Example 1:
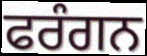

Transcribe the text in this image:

ਫਰੰਗਨ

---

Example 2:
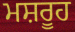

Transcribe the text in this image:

ਮਸ਼ਰੂਹ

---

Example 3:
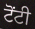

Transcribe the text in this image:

ਟੋਂਟੀ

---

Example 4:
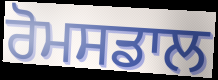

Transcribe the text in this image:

ਰੋਮਸਡਾਲ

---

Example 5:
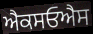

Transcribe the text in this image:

ਐਕਸਓਐਸ